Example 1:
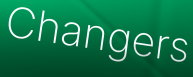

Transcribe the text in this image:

Changers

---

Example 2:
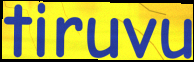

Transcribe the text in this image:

tiruvu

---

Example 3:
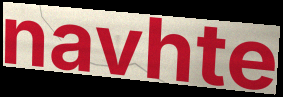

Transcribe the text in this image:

navhte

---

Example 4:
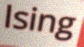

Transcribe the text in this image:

Ising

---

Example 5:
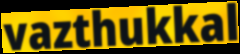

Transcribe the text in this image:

vazthukkal